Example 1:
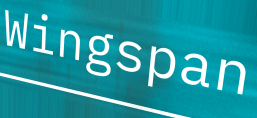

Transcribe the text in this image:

Wingspan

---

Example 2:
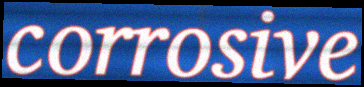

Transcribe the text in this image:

corrosive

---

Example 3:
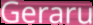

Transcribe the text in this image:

Geraru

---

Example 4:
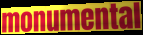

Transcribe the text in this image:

monumental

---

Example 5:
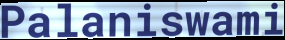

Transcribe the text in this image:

Palaniswami